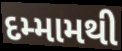
દમ્મામથી